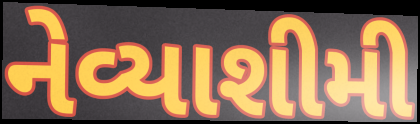
નેવ્યાશીમી